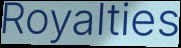
Royalties